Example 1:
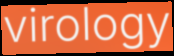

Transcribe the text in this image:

virology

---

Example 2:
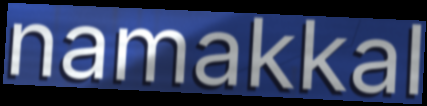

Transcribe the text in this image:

namakkal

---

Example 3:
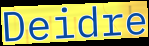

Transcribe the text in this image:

Deidre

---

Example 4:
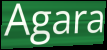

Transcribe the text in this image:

Agara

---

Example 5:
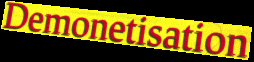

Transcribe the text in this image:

Demonetisation